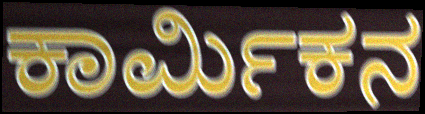
ಕಾರ್ಮಿಕನ